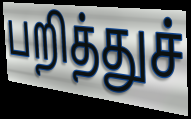
பறித்துச்